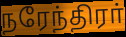
நரேந்திரர்